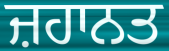
ਜ਼ਹਾਨਤ